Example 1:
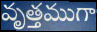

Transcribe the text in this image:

వృత్తముగా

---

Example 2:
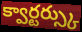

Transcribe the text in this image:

క్వార్టర్స్కు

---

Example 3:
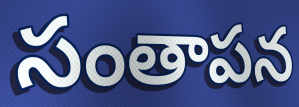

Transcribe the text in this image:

సంతాపన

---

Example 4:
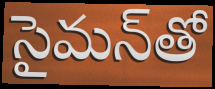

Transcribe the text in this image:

సైమన్‌తో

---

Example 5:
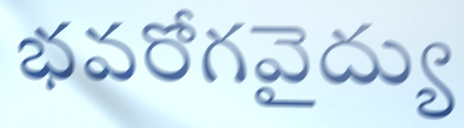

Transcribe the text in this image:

భవరోగవైద్యు